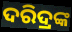
ଦରିଦ୍ରଙ୍କ